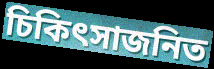
চিকিৎসাজনিত